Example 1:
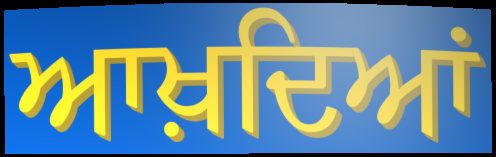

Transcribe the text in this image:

ਆਖ਼ਦਿਆਂ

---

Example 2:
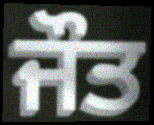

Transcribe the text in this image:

ਜੌਤ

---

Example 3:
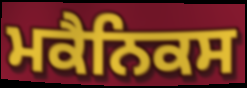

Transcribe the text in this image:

ਮਕੈਨਿਕਸ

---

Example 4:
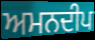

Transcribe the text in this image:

ਅਮਨਦੀਪ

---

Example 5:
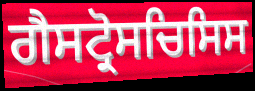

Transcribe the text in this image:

ਗੈਸਟ੍ਰੋਸਚਿਸਿਸ